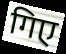
गिए